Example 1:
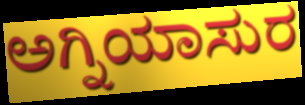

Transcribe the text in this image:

ಅಗ್ನಿಯಾಸುರ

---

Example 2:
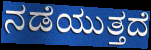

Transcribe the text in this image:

ನಡೆಯುತ್ತದೆ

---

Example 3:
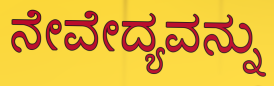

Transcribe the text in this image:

ನೇವೇದ್ಯವನ್ನು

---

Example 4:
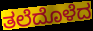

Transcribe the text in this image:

ತಲೆದೊಳೆದ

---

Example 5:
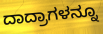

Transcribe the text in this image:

ದಾದ್ರಾಗಳನ್ನೂ